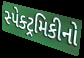
સ્પેક્ટ્રમિકીનો